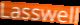
Lasswell